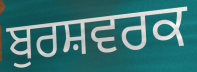
ਬੁਰਸ਼ਵਰਕ